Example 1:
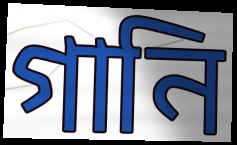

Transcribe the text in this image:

গানি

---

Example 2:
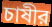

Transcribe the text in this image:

চাষীর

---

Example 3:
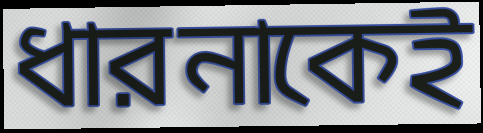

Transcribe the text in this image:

ধারনাকেই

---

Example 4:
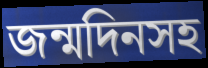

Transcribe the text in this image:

জন্মদিনসহ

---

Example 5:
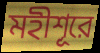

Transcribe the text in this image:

মহীশূরে